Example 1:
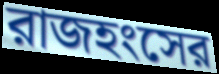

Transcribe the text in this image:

রাজহংসের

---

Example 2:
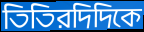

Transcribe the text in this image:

তিতিরদিদিকে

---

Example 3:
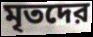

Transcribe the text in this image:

মৃতদের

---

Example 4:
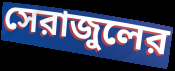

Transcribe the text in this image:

সেরাজুলের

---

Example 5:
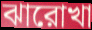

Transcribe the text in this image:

ঝারোখা